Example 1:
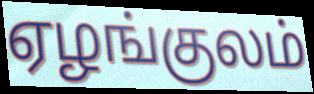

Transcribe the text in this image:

ஏழங்குலம்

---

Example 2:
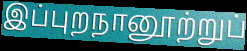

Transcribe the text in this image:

இப்புறநானூற்றுப்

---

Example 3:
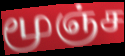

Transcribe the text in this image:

மூஞ்ச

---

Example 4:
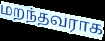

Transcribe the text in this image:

மறந்தவராக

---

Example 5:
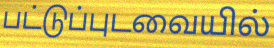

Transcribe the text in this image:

பட்டுப்புடவையில்